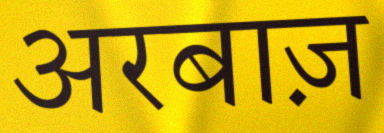
अरबाज़